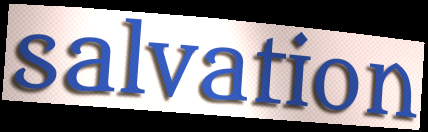
salvation